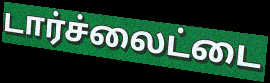
டார்ச்லைட்டை